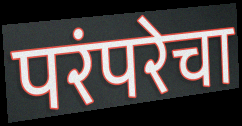
परंपरेचा